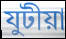
যুটীয়া